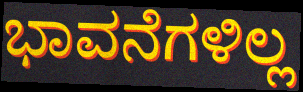
ಭಾವನೆಗಳಿಲ್ಲ